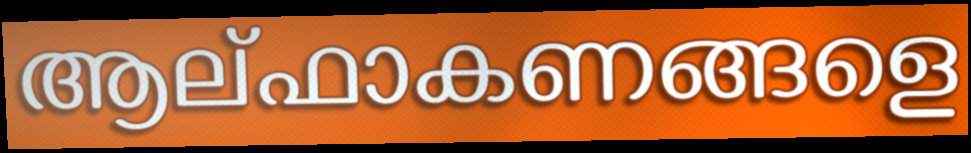
ആല്ഫാകണങ്ങളെ